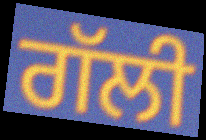
ਗੱਲੀ